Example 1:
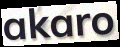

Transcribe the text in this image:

akaro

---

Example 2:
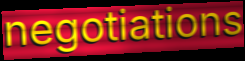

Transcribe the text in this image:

negotiations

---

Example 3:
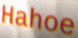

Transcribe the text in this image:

Hahoe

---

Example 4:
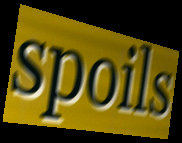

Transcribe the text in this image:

spoils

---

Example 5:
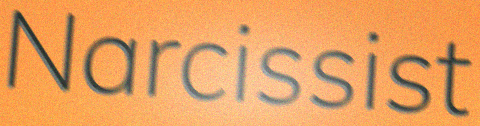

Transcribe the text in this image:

Narcissist